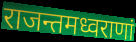
राजन्तमध्वराणां